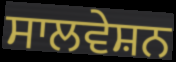
ਸਾਲਵੇਸ਼ਨ